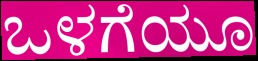
ಒಳಗೆಯೂ